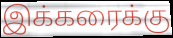
இக்கரைக்கு